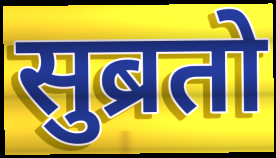
सुब्रतो